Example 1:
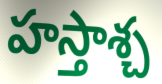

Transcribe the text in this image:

హస్తాశ్చ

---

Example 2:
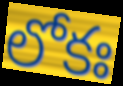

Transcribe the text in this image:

లోకః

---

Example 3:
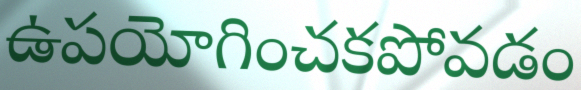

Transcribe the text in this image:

ఉపయోగించకపోవడం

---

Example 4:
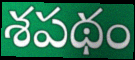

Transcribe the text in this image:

శపథం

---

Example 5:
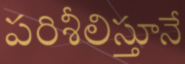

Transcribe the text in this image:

పరిశీలిస్తూనే